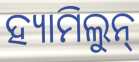
ହ୍ୟାମିଲୁନ୍